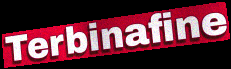
Terbinafine